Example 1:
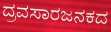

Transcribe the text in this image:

ದ್ರವಸಾರಜನಕದ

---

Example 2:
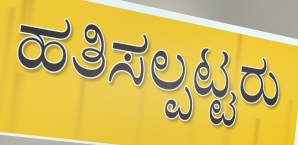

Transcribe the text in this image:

ಹತಿಸಲ್ಪಟ್ಟರು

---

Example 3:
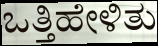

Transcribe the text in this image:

ಒತ್ತಿಹೇಳಿತು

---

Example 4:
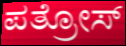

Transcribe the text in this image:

ಪತ್ರೋಸ್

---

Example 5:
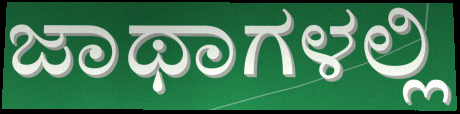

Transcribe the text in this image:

ಜಾಥಾಗಳಲ್ಲಿ